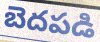
బెదపడి